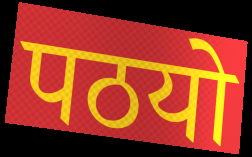
पठयो